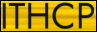
ITHCP